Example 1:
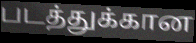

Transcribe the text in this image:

படத்துக்கான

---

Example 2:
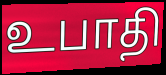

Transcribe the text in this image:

உபாதி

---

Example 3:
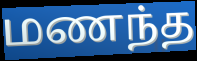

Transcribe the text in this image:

மணந்த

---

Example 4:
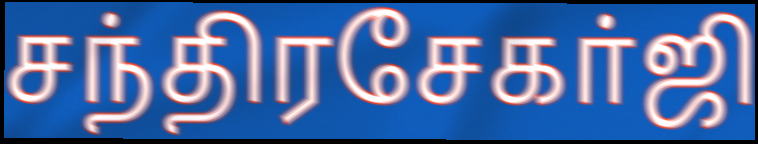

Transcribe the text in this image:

சந்திரசேகர்ஜி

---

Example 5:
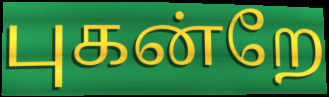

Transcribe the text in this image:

புகன்றே